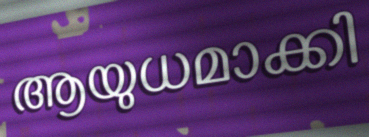
ആയുധമാക്കി